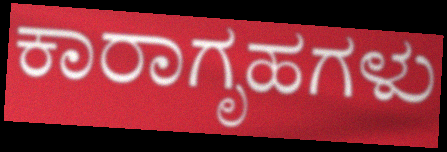
ಕಾರಾಗೃಹಗಳು